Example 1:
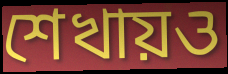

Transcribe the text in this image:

শেখায়ও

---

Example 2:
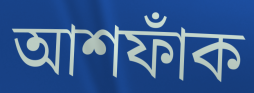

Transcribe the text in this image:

আশফাঁক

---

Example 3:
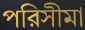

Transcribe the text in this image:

পরিসীমা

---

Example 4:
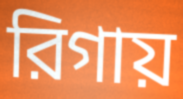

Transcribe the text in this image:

রিগায়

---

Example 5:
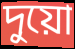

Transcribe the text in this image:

দুয়ো